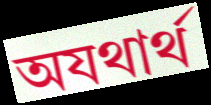
অযথার্থ